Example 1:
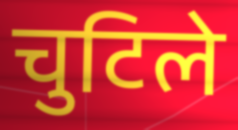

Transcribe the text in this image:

चुटिले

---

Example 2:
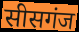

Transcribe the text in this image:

सीसगंज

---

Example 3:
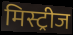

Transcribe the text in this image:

मिस्ट्रीज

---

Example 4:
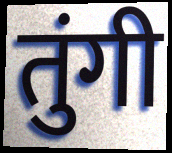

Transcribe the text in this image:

तुंगी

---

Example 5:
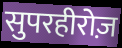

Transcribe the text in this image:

सुपरहीरोज़